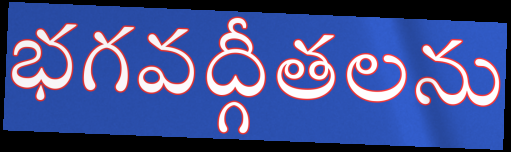
భగవద్గీతలను